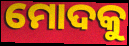
ମୋଦକୁ